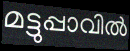
മട്ടുപ്പാവിൽ